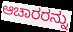
ಆಚಾರರನ್ನು